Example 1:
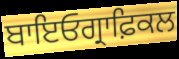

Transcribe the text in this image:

ਬਾਇਓਗ੍ਰਾਫ਼ਿਕਲ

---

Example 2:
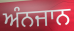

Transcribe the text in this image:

ਅੰਨਜਾਨ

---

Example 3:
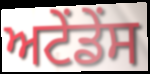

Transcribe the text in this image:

ਅਟੇਂਡੇਂਸ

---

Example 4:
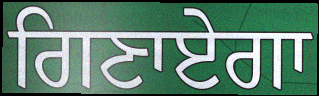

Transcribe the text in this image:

ਗਿਣਾਏਗਾ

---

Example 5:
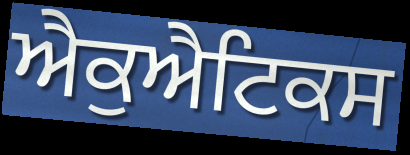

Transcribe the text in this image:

ਐਕੁਐਟਿਕਸ